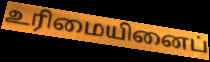
உரிமையினைப்